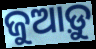
ଜୁଆଡ଼ୁ